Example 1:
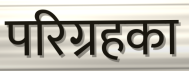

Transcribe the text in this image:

परिग्रहका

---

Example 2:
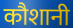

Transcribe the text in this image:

कौशानी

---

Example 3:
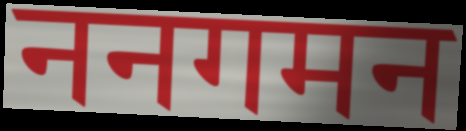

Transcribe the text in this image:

ननगमन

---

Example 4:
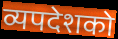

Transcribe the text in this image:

व्यपदेशको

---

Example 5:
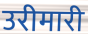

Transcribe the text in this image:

उरीमारी